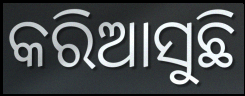
କରିଆସୁଛି